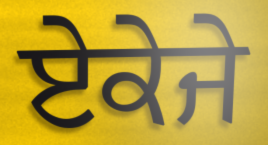
ਏਕੇਜੇ